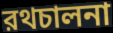
রথচালনা